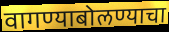
वागण्याबोलण्याचा